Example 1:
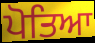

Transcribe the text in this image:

ਪੋਤਿਆ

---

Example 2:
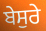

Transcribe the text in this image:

ਬੇਸੁਰੇ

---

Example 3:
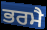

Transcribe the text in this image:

ਭਰਮੈ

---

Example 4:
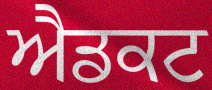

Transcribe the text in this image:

ਐਡਕਟ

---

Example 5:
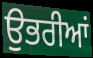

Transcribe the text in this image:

ਉਭਰੀਆਂ